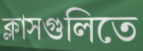
ক্লাসগুলিতে